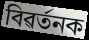
বিৱৰ্তনক